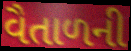
વૈતાળની